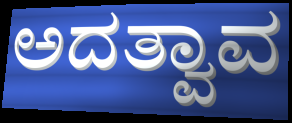
ಅದತ್ವಾವ